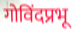
गोविंदप्रभू